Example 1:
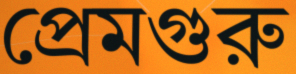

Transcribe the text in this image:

প্রেমগুরু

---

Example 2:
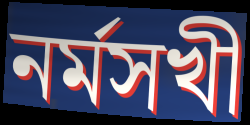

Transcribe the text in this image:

নর্মসখী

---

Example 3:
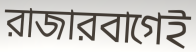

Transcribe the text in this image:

রাজারবাগেই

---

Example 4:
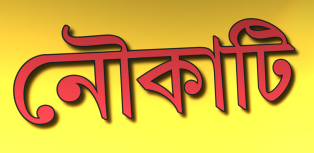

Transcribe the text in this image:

নৌকাটি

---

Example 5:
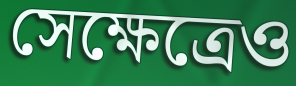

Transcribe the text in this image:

সেক্ষেত্রেও